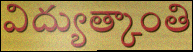
విద్యుత్కాంతి